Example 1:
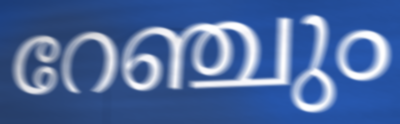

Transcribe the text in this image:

റേഞ്ചും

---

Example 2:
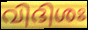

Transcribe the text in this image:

വിദിശഃ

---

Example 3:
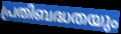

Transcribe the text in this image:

പ്രതിബദ്ധതയും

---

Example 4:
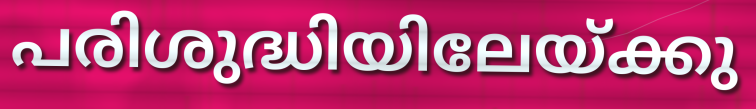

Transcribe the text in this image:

പരിശുദ്ധിയിലേയ്ക്കു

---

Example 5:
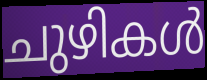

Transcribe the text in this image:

ചുഴികൾ